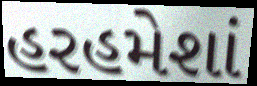
હરહમેશાં